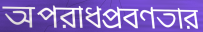
অপরাধপ্রবণতার